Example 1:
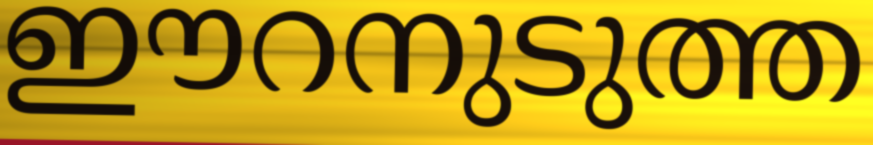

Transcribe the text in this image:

ഈറനുടുത്ത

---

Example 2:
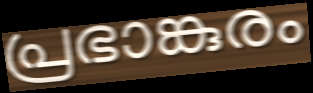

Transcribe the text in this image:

പ്രഭാങ്കുരം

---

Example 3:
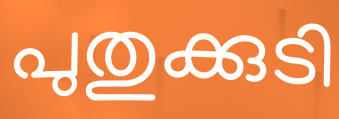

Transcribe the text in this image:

പുതുക്കുടി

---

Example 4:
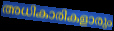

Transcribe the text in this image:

അധികാരികളാരും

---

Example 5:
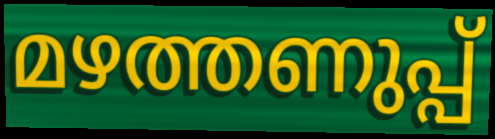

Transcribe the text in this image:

മഴത്തണുപ്പ്